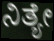
ನಿತ್ಯೇ